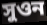
সুওন